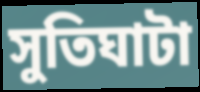
সুতিঘাটা